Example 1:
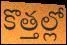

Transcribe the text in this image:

కొత్తల్లో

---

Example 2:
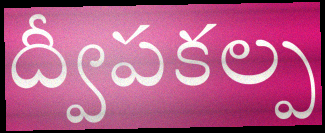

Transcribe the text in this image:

ద్వీపకల్ప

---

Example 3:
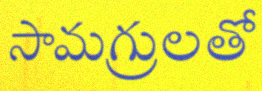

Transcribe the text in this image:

సామగ్రులతో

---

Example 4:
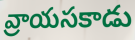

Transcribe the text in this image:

వ్రాయసకాడు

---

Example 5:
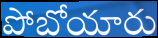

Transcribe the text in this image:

పోబోయారు